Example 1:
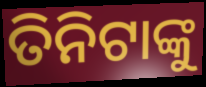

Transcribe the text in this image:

ତିନିଟାଙ୍କୁ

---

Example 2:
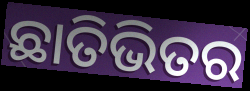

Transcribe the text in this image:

ଛାତିଭିତର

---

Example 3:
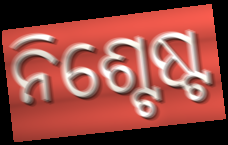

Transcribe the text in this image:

ନିଶ୍ଟେଷ୍ଟ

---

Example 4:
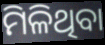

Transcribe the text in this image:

ମିଳିଥିବା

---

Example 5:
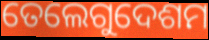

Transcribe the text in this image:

ତେଲେଗୁଦେଶମ